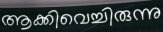
ആക്കിവെച്ചിരുന്നു